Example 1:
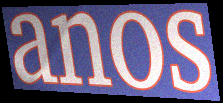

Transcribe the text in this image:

anos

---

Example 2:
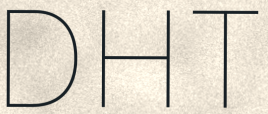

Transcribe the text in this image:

DHT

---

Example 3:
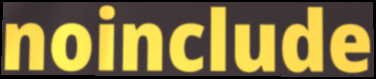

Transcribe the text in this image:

noinclude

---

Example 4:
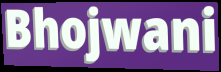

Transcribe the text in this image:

Bhojwani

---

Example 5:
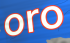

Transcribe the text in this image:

oro